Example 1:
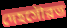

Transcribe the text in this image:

দেহসৌরভ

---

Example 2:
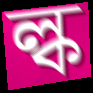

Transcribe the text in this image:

ল্ক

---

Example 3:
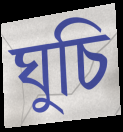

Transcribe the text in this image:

ঘুচি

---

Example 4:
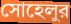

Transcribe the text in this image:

সোহেলুর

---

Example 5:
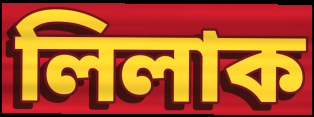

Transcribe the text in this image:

লিলাক